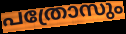
പത്രോസും